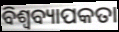
ବିଶ୍ୱବ୍ୟାପକତା